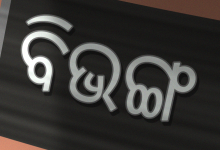
ବିଭଙ୍ଗ